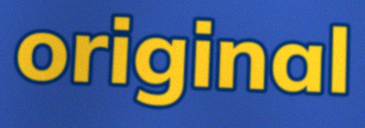
original